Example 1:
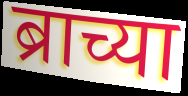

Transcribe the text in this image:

ब्राच्या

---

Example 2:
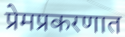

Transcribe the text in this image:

प्रेमप्रकरणात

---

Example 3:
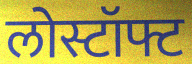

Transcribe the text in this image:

लोस्टॉफ्ट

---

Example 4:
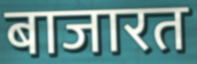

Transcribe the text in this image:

बाजारत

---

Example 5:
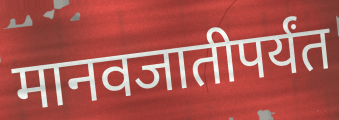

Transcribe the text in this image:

मानवजातीपर्यंत